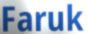
Faruk